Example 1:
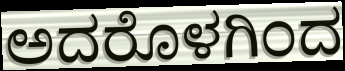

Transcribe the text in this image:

ಅದರೊಳಗಿಂದ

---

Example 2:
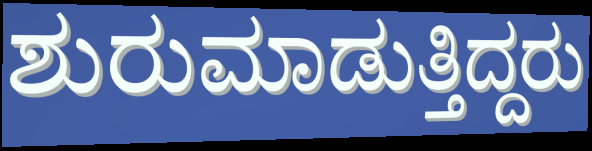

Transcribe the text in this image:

ಶುರುಮಾಡುತ್ತಿದ್ದರು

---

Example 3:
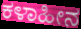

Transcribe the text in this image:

ಕಳಾಹೀನ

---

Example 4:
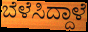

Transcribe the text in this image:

ಬೆಳೆಸಿದ್ದಾಳೆ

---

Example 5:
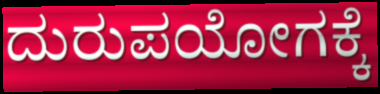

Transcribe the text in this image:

ದುರುಪಯೋಗಕ್ಕೆ